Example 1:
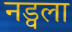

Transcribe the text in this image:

नड्वला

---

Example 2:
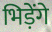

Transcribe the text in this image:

भिड़ेंगे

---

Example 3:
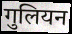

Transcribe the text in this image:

गुलियन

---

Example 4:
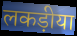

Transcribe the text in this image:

लकड़ीया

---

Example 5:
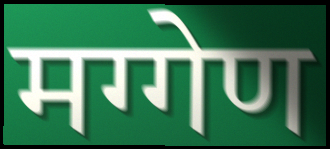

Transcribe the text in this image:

मग्गेण